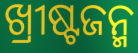
ଖ୍ରୀଷ୍ଟଜନ୍ମ